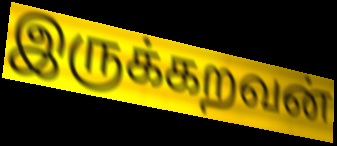
இருக்கறவன்